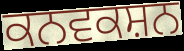
ਕਨਵਕਸ਼ਨ